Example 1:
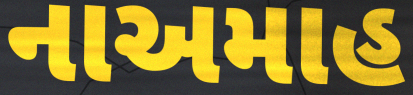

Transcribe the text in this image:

નાઅમાહ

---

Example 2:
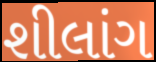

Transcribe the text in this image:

શીલાંગ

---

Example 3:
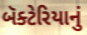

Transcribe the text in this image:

બૅક્ટેરિયાનું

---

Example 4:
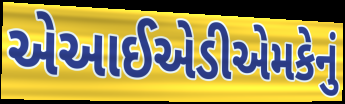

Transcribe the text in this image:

એઆઈએડીએમકેનું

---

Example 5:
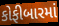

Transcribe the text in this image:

કોફીબારમાં